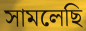
সামলেছি